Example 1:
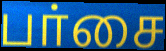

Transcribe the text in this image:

பர்சை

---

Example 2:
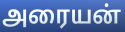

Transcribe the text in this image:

அரையன்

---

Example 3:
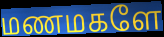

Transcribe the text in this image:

மணமகளே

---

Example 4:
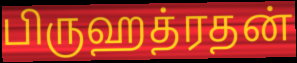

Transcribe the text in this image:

பிருஹத்ரதன்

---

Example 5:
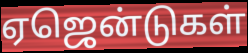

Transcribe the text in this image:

ஏஜென்டுகள்